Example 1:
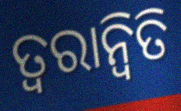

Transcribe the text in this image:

ତ୍ଵରାନ୍ଵିତି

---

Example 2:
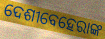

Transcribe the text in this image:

ଦେଶୀବେହେରାଙ୍କ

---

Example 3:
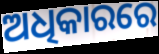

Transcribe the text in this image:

ଅଧିକାରରେ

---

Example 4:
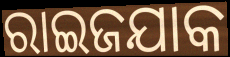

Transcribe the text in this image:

ରାଇଜଯାକ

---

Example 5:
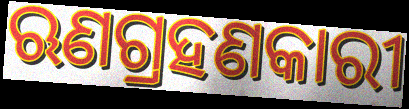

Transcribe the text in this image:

ଋଣଗ୍ରହଣକାରୀ